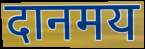
दानमय